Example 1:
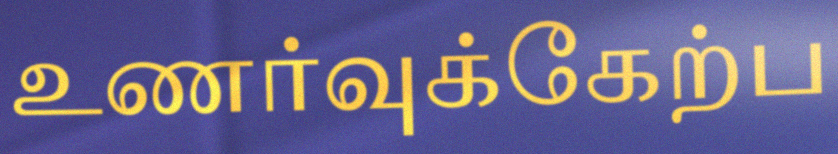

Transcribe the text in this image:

உணர்வுக்கேற்ப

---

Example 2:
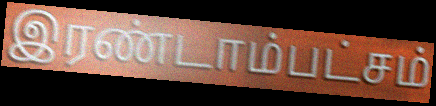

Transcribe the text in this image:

இரண்டாம்பட்சம்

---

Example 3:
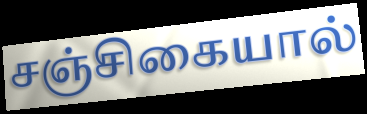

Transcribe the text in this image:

சஞ்சிகையால்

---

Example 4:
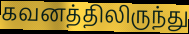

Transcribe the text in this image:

கவனத்திலிருந்து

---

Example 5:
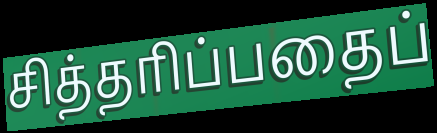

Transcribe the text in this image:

சித்தரிப்பதைப்